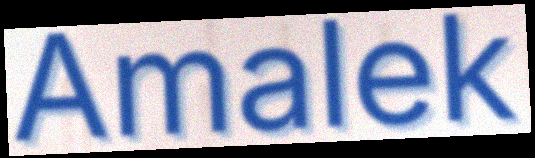
Amalek